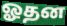
ஓதன